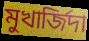
মুখার্জিদা